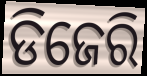
ଡିଜେରି